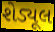
શેડ્યૂલ